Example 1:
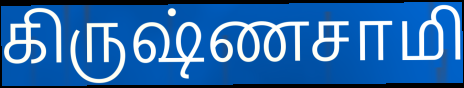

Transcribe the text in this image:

கிருஷ்ணசாமி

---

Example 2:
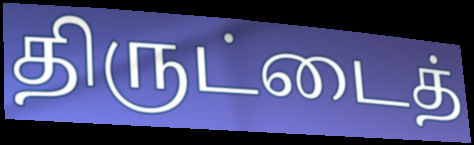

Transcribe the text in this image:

திருட்டைத்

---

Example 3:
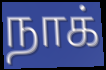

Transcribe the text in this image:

நாக்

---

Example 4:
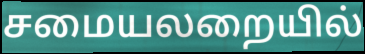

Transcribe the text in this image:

சமையலறையில்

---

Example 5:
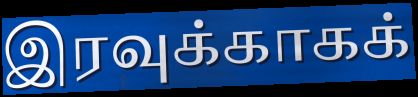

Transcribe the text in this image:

இரவுக்காகக்